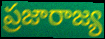
ప్రజారాజ్య